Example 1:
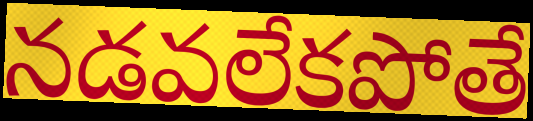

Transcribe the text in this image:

నడవలేకపోతే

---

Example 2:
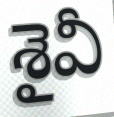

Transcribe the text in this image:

శైవీ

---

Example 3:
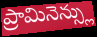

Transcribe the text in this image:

ప్రామినెన్స్లు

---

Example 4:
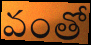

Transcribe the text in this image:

వంతో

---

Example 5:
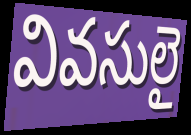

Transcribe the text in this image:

వివసులై